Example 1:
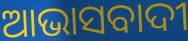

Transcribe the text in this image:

ଆଭାସବାଦୀ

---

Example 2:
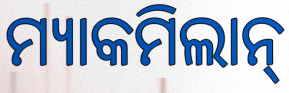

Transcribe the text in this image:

ମ୍ୟାକମିଲାନ୍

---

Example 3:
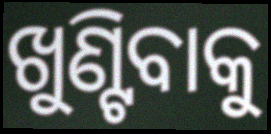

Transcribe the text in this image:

ଖୁଣ୍ଟିବାକୁ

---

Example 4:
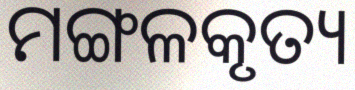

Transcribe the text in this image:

ମଙ୍ଗଳକୃତ୍ୟ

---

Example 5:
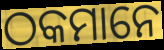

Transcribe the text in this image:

ଠକମାନେ